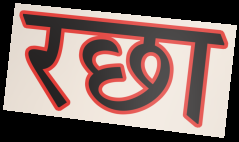
रछा